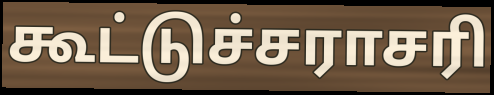
கூட்டுச்சராசரி